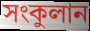
সংকুলান